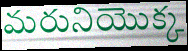
మరునియొక్క